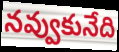
నవ్వుకునేది